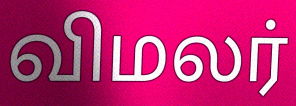
விமலர்